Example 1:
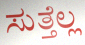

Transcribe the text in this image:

ಸುತ್ತೆಲ್ಲ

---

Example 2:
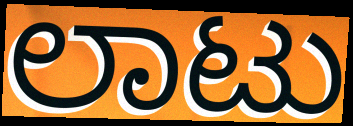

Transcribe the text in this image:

ಲಾಟು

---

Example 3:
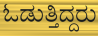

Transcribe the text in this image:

ಓಡುತ್ತಿದ್ದರು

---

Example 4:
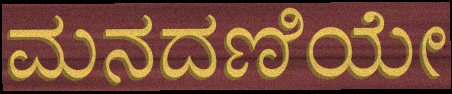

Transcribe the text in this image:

ಮನದಣಿಯೇ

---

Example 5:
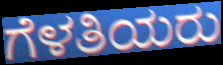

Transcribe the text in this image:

ಗೆಳತಿಯರು